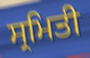
ਸ੍ਰਮਿਤੀ